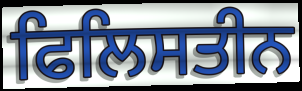
ਫਿਲਿਸਤੀਨ